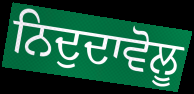
ਨਿਦੁਦਾਵੋਲੂ